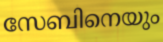
സേബിനെയും